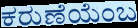
ಕರುಣೆಯೆಂಬ